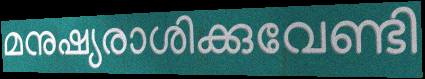
മനുഷ്യരാശിക്കുവേണ്ടി